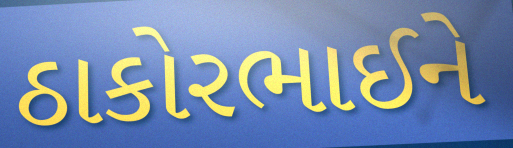
ઠાકોરભાઈને